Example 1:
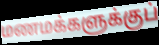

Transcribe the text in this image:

மணமக்களுக்குப்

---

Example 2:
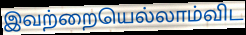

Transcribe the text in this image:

இவற்றையெல்லாம்விட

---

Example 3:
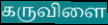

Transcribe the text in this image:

கருவிளை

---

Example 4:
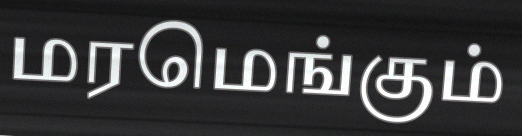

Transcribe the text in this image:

மரமெங்கும்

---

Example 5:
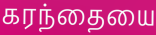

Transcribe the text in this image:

கரந்தையை